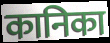
कानिका